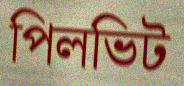
পিলভিট